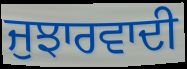
ਜੁਝਾਰਵਾਦੀ